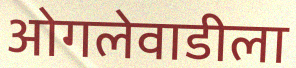
ओगलेवाडीला